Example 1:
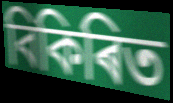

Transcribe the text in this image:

বিকিৰিত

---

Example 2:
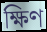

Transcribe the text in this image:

ক্ষিণ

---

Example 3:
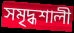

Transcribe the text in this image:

সমৃদ্ধশালী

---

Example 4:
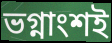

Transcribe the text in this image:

ভগ্নাংশই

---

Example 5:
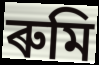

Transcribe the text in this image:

ৰুমি